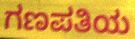
ಗಣಪತಿಯ